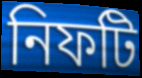
নিফটি